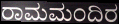
ರಾಮಮಂದಿರ